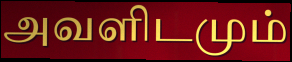
அவளிடமும்